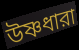
উষ্ণধারা